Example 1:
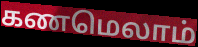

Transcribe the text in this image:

கணமெலாம்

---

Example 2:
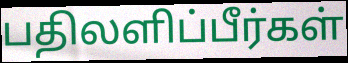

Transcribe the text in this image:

பதிலளிப்பீர்கள்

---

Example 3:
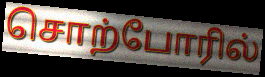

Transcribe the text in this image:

சொற்போரில்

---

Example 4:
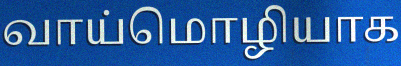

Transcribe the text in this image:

வாய்மொழியாக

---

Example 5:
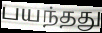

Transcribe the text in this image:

பயந்தது